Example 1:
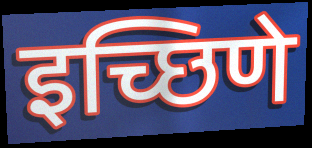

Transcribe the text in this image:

इच्छिणे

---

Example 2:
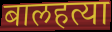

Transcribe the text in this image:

बालहत्या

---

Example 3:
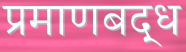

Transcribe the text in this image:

प्रमाणबद्ध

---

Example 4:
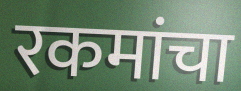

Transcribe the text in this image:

रकमांचा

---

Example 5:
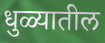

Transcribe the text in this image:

धुळ्यातील